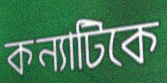
কন্যাটিকে